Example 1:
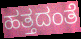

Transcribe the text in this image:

ಹತ್ತದಂತೆ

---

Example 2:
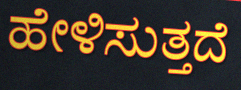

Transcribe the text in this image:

ಹೇಳಿಸುತ್ತದೆ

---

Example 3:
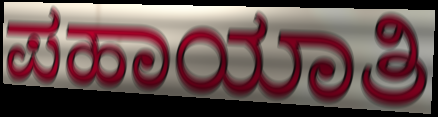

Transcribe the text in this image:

ಪಹಾಯಾತಿ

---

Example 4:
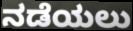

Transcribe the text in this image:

ನಡೆಯಲು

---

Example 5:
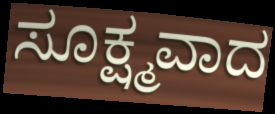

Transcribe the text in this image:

ಸೂಕ್ಷ್ಮವಾದ